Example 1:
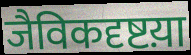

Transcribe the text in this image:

जैविकदृष्टय़ा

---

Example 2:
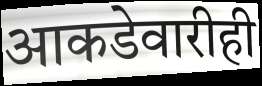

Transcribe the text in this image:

आकडेवारीही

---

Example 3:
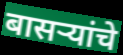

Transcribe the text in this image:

बासऱ्यांचे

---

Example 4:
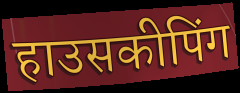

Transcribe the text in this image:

हाउसकीपिंग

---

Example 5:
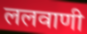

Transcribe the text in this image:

ललवाणी